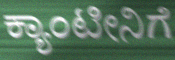
ಕ್ಯಾಂಟೀನಿಗೆ